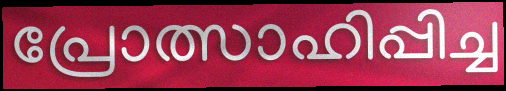
പ്രോത്സാഹിപ്പിച്ച